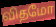
விதமோ